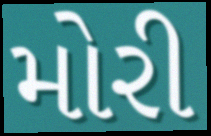
મોરી